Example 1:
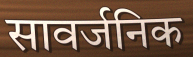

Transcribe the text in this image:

सावर्जनिक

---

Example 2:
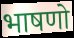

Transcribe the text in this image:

भाषणो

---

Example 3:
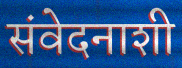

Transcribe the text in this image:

संवेदनाशी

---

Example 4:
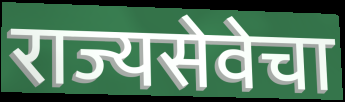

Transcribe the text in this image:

राज्यसेवेचा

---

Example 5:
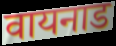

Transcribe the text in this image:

वायनाड